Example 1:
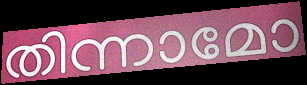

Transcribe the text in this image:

തിന്നാമോ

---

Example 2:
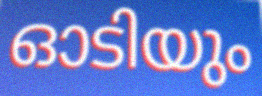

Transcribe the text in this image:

ഓടിയും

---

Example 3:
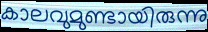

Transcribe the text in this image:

കാലവുമുണ്ടായിരുന്നു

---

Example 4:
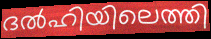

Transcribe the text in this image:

ദൽഹിയിലെത്തി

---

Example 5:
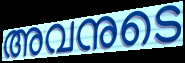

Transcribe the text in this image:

അവനുടെ